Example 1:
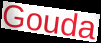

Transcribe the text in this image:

Gouda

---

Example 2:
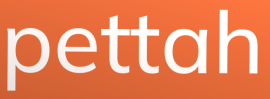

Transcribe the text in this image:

pettah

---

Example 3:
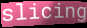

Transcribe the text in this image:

slicing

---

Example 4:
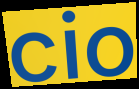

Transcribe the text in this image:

cio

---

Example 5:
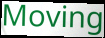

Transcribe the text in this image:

Moving